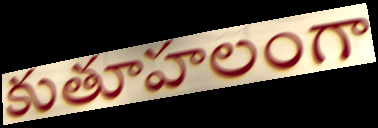
కుతూహలంగా